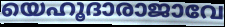
യെഹൂദാരാജാവേ